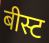
बीस्ट